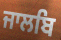
ਜਾਲਬਿ